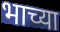
भाच्या